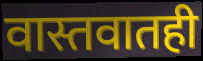
वास्तवातही